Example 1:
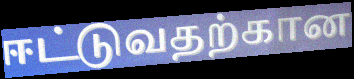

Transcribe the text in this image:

ஈட்டுவதற்கான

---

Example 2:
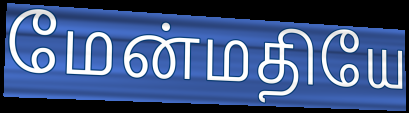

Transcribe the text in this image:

மேன்மதியே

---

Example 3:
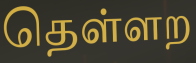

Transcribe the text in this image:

தெள்ளற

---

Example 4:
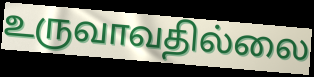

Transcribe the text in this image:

உருவாவதில்லை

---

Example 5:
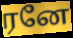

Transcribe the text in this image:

ரனே